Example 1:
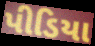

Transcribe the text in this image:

પીડિયા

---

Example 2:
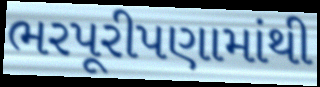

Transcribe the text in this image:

ભરપૂરીપણામાંથી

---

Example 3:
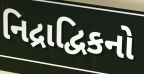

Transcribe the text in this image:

નિદ્રાદ્વિકનો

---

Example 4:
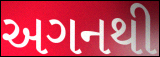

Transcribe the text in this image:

અગનથી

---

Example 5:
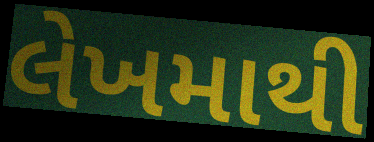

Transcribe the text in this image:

લેખમાથી